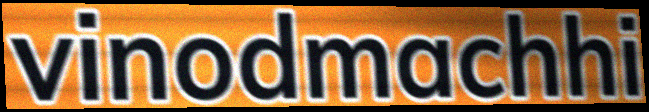
vinodmachhi